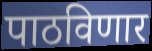
पाठविणार